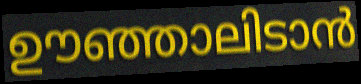
ഊഞ്ഞാലിടാൻ